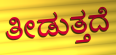
ತೀಡುತ್ತದೆ